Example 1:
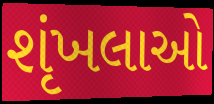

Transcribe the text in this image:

શૃંખલાઓ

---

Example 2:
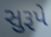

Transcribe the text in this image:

સુરૂપે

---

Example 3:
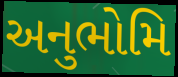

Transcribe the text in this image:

અનુભોમિ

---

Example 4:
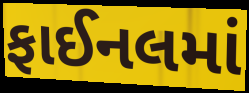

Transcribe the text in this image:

ફાઈનલમાં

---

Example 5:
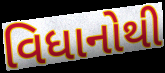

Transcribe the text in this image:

વિધાનોથી